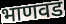
भाणवड